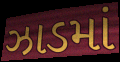
ઝાડમાં